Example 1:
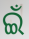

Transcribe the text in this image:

ଇଁ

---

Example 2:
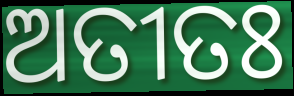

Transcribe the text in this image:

ଅତୀତଃ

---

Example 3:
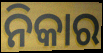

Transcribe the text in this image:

ନିକାର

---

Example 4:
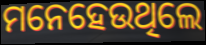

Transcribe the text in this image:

ମନେହେଉଥିଲେ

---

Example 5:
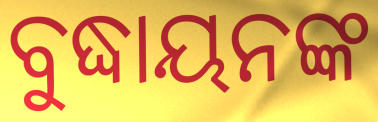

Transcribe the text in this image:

ବୁଦ୍ଧାୟନଙ୍କ